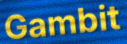
Gambit